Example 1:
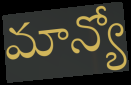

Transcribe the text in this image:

మాన్యో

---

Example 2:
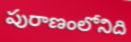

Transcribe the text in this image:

పురాణంలోనిది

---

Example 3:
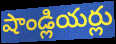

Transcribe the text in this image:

షాండ్లియర్లు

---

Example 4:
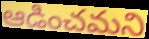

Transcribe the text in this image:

ఆడించమని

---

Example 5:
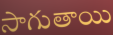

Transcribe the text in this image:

సాగుతాయి